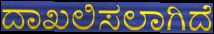
ದಾಖಲಿಸಲಾಗಿದೆ